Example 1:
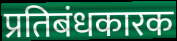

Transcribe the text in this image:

प्रतिबंधकारक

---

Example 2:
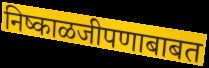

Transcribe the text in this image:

निष्काळजीपणाबाबत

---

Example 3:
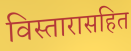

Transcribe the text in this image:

विस्तारासहित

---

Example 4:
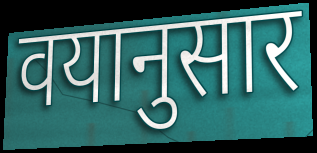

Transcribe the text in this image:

वयानुसार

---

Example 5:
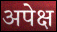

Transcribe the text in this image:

अपेक्ष